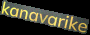
kanavarike